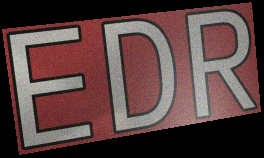
EDR